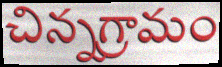
చిన్నగ్రామం